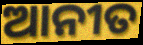
ଆନୀତ